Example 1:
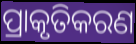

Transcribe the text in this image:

ପ୍ରାକୃତିକରଣ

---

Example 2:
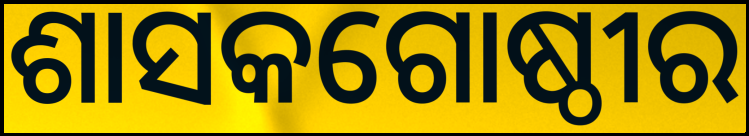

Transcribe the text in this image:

ଶାସକଗୋଷ୍ଠୀର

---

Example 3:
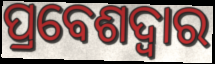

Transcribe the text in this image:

ପ୍ରବେଶଦ୍ଵାର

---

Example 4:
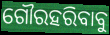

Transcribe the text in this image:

ଗୌରହରିବାବୁ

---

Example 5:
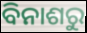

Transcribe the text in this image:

ବିନାଶରୁ